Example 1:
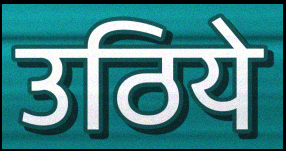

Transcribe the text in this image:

उठिये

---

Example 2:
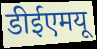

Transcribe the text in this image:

डीईएमयू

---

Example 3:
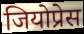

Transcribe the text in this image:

जियोप्रेस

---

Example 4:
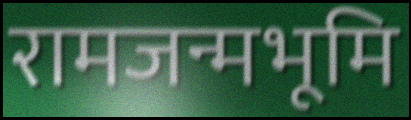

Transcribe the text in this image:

रामजन्मभूमि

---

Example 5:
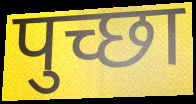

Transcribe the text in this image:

पुच्छा